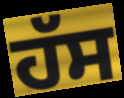
ਹੱਸ